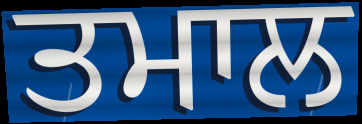
ਤਮਾਲ